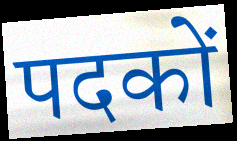
पदकों